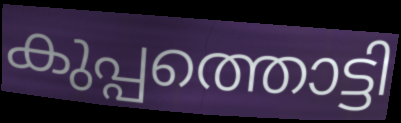
കുപ്പത്തൊട്ടി